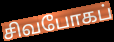
சிவபோகப்